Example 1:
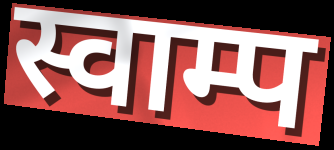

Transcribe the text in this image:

स्वाम्प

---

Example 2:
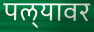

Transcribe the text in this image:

पल्यावर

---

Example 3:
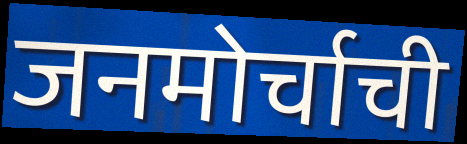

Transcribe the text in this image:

जनमोर्चाची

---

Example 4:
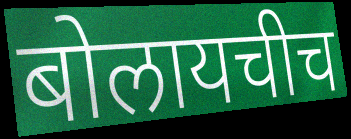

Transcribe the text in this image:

बोलायचीच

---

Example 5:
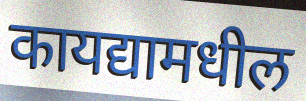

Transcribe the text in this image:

कायद्यामधील